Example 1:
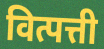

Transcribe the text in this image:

वित्पत्ती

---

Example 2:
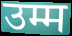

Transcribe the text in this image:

उम्म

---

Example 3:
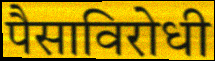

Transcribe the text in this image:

पैसाविरोधी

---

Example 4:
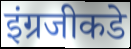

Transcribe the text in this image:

इंग्रजीकडे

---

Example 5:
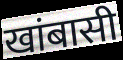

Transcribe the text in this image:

खांबासी